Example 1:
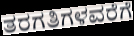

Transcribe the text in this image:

ತರಗತಿಗಳವರೆಗೆ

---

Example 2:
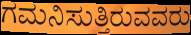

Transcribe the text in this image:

ಗಮನಿಸುತ್ತಿರುವವರು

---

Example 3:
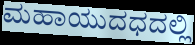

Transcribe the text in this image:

ಮಹಾಯುದಧದಲ್ಲಿ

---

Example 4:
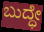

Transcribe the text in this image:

ಬುದ್ಧೇ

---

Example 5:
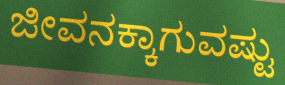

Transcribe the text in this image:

ಜೀವನಕ್ಕಾಗುವಷ್ಟು